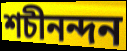
শচীনন্দন